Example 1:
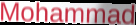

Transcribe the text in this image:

Mohammad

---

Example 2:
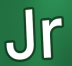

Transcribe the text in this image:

Jr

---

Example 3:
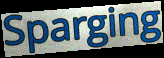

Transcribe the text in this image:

Sparging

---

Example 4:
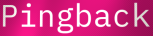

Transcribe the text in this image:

Pingback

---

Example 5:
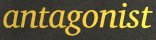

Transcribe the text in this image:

antagonist